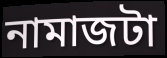
নামাজটা